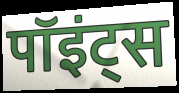
पॉइंट्स